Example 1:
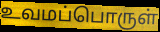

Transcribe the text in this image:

உவமப்பொருள்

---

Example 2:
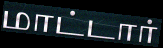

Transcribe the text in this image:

மாட்டார்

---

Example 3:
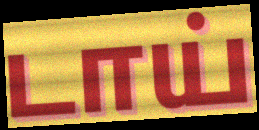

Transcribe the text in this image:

டாய்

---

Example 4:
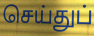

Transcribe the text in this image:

செய்துப்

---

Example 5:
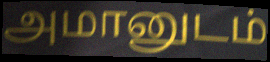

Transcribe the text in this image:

அமானுடம்